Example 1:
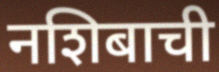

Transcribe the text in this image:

नशिबाची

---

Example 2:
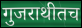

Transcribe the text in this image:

गुजराथीतच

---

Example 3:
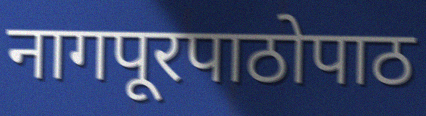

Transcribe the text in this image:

नागपूरपाठोपाठ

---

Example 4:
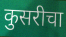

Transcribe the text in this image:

कुसरीचा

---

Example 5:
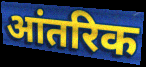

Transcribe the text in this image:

आंतरिक